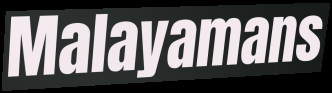
Malayamans